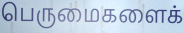
பெருமைகளைக்